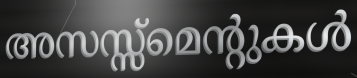
അസസ്സ്മെന്റുകൾ